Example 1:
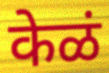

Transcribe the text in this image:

केळं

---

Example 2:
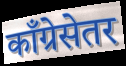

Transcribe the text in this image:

काँग्रेसेतर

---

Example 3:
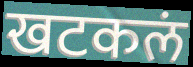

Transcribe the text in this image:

खटकलं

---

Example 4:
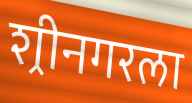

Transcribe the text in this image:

श्रीनगरला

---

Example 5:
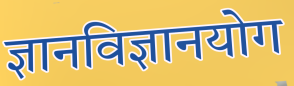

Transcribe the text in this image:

ज्ञानविज्ञानयोग